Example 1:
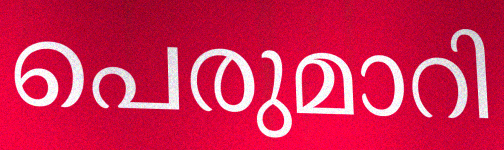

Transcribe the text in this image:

പെരുമാറി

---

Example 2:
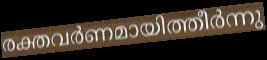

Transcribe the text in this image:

രക്തവർണമായിത്തീർന്നു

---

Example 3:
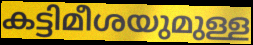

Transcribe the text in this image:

കട്ടിമീശയുമുള്ള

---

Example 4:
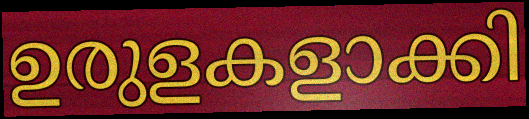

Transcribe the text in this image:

ഉരുളകളാക്കി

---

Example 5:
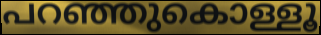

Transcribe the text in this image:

പറഞ്ഞുകൊള്ളൂ